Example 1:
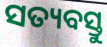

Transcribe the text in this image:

ସତ୍ୟବସ୍ତୁ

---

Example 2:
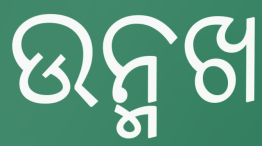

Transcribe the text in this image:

ଉନ୍ମଖ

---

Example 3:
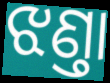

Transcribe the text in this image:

ଝଣ୍ତା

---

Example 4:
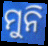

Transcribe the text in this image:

ମୁନି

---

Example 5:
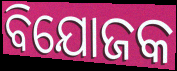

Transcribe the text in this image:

ବିଯୋଜକ